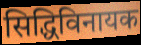
सिद्धिविनायक